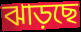
ঝাড়ছে